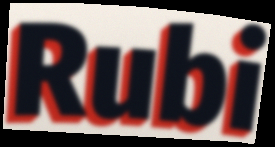
Rubi